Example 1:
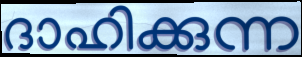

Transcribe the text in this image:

ദാഹിക്കുന്ന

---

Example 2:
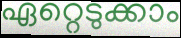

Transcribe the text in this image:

ഏറ്റെടുക്കാം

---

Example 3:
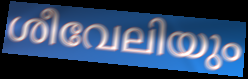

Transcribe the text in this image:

ശീവേലിയും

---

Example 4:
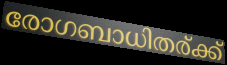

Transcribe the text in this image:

രോഗബാധിതര്ക്ക്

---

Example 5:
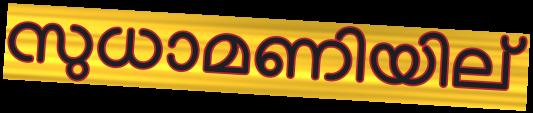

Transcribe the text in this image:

സുധാമണിയില്